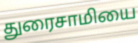
துரைசாமியை